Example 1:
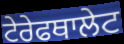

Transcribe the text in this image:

ਟੇਰੇਫਥਾਲੇਟ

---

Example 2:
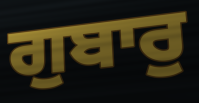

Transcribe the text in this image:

ਗੁਬਾਰੁ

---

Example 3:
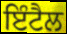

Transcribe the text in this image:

ਇੰਟੈਲ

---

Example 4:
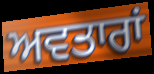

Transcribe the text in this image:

ਅਵਤਾਰਾਂ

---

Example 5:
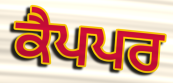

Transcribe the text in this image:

ਕੈਪਪਰ